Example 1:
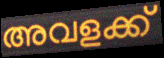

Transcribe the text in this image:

അവളക്ക്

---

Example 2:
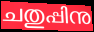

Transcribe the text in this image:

ചതുപ്പിനു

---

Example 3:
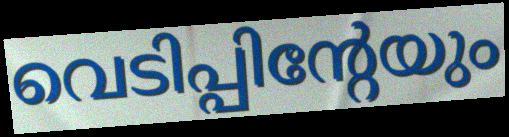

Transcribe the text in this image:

വെടിപ്പിന്റേയും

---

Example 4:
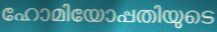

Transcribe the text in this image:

ഹോമിയോപ്പതിയുടെ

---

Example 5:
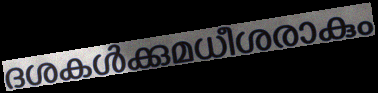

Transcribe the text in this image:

ദശകൾക്കുമധീശരാകും